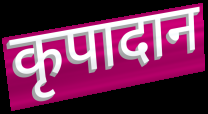
कृपादान